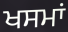
ਖਸਮਾਂ